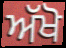
ਅੱਖੋ